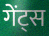
गेंट्स